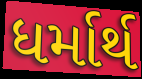
ધર્માર્થ